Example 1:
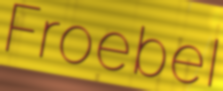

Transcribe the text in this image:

Froebel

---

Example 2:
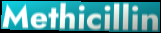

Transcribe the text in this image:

Methicillin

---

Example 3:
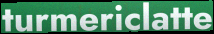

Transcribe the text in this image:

turmericlatte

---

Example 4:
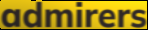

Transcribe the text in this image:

admirers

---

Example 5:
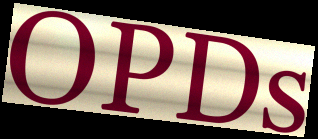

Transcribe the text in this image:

OPDs